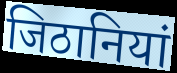
जिठानियां